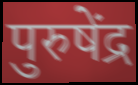
पुरुषेंद्र